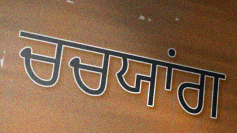
ਚਚਯਾਂਗ